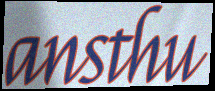
ansthu